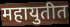
महायुतीत